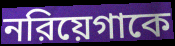
নরিয়েগাকে